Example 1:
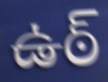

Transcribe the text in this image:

ఉఠ్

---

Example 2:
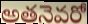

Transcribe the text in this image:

అతనెవరో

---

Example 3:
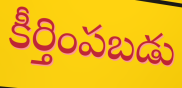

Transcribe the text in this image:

కీర్తింపబడు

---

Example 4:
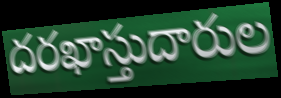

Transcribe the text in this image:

దరఖాస్తుదారుల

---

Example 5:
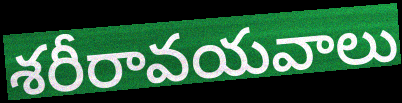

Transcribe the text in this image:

శరీరావయవాలు